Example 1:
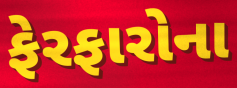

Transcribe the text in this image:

ફેરફારોના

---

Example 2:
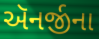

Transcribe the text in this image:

ઍનર્જીના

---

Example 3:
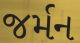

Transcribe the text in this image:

જર્મન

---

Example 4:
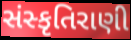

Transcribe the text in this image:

સંસ્કૃતિરાણી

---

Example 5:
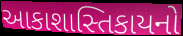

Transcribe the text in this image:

આકાશાસ્તિકાયનો